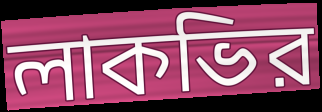
লাকভির